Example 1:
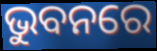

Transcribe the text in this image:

ଭୁବନରେ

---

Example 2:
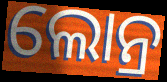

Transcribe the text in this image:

ଲୋନ୍ର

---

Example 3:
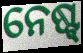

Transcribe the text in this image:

ନେଷ୍ଟ୍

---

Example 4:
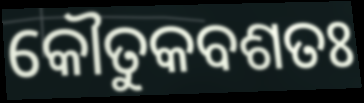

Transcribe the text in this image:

କୌତୁକବଶତଃ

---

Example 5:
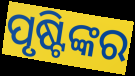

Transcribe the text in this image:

ପୃଷ୍ଟିଙ୍କର